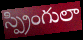
స్ప్రింగులా